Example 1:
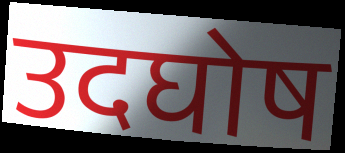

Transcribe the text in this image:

उदघोष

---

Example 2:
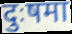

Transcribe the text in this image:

दुःषमा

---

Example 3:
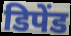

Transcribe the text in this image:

डिपेंड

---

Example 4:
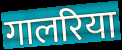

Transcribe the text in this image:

गालरिया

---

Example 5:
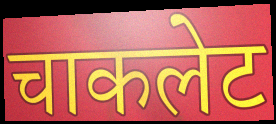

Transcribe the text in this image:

चाकलेट